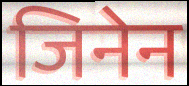
जिनेन